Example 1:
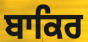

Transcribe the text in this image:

ਬਾਕਿਰ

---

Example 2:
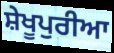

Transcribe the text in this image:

ਸ਼ੇਖੂਪੁਰੀਆ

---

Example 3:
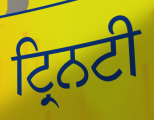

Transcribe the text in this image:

ਟ੍ਰਿਨਟੀ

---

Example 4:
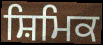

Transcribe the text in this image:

ਸ਼ਿਮਿਕ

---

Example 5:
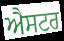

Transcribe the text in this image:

ਐਸਟਰ